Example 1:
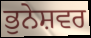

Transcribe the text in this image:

ਭੁਨੇਸ਼ਵਰ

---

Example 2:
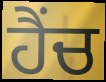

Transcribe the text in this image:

ਹੈਂਚ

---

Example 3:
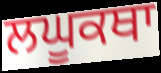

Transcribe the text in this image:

ਲਘੂਕਥਾ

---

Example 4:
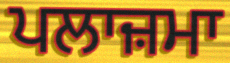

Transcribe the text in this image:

ਪਲਾਜ਼ਮਾ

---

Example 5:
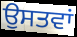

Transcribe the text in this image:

ਉਸਤਵਾਂ